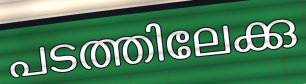
പടത്തിലേക്കു